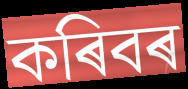
কৰিবৰ